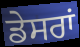
ਡੇਸਰਾਂ